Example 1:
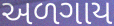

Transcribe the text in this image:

અળગાય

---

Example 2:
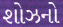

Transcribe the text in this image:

શોઝનો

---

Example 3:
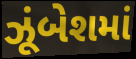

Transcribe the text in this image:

ઝૂંબેશમાં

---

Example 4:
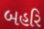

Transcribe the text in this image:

બહરિ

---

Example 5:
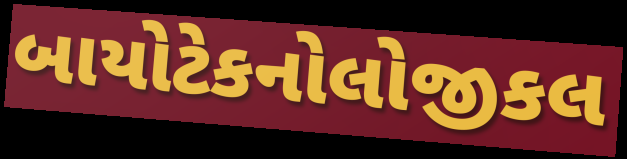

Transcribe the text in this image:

બાયોટેકનોલોજીકલ